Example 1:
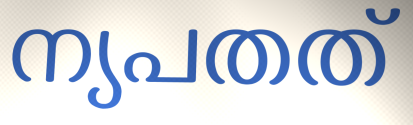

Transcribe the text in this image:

ന്യപതത്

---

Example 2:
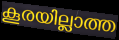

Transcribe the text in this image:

കൂരയില്ലാത്ത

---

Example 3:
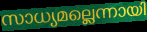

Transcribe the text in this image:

സാധ്യമല്ലെന്നായി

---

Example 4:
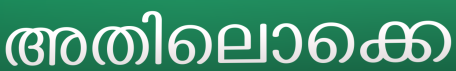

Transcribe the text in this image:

അതിലൊക്കെ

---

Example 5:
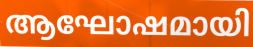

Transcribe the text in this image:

ആഘോഷമായി